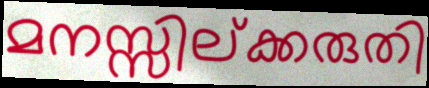
മനസ്സില്ക്കരുതി